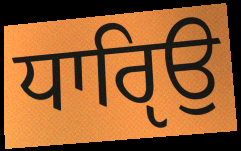
ਧਾਰੵਿਉ